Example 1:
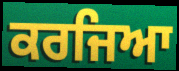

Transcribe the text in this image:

ਕਰਜਿਆ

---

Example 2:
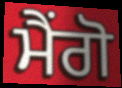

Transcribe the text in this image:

ਮੈਂਗੋ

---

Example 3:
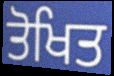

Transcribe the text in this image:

ਤੋਖਿਤ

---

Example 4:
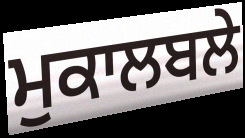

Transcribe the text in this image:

ਮੁਕਾਲਬਲੇ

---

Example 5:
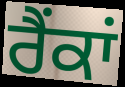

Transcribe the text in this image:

ਰੈਂਕਾਂ